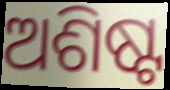
ଅଶିଷ୍ଟ